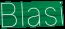
Blasi